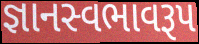
જ્ઞાનસ્વભાવરૂપ